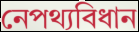
নেপথ্যবিধান